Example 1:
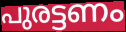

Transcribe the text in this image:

പുരട്ടണം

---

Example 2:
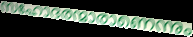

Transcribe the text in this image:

സഹോദരന്മാരാണെന്നും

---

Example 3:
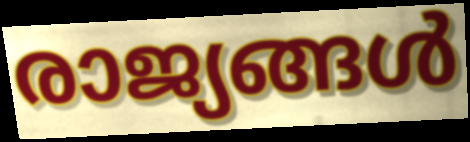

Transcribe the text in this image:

രാജ്യങ്ങൾ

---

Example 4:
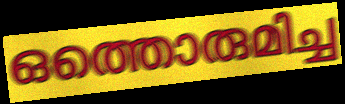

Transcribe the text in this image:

ഒത്തൊരുമിച്ച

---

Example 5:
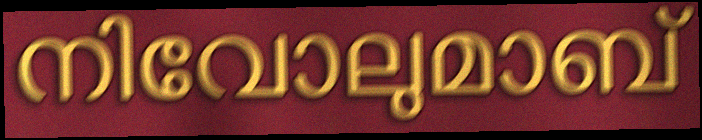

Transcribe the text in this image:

നിവോലുമാബ്